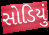
સોડિયું